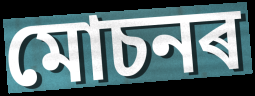
মোচনৰ